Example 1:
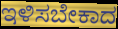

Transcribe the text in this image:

ಇಳಿಸಬೇಕಾದ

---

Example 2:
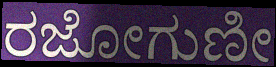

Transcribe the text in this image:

ರಜೋಗುಣೀ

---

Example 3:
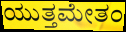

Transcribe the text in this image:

ಯುತ್ತಮೇತಂ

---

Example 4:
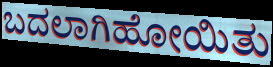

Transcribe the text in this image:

ಬದಲಾಗಿಹೋಯಿತು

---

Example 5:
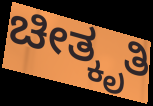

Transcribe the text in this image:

ಚೀತ್ಕೃತಿ